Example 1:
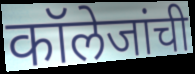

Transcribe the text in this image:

कॉलेजांची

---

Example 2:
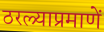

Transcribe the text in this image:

ठरल्याप्रमाणें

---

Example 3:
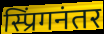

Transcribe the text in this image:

स्प्रिंगनंतर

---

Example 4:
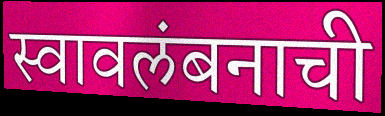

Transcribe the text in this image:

स्वावलंबनाची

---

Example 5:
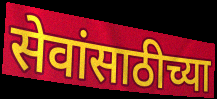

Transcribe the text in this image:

सेवांसाठीच्या